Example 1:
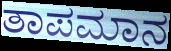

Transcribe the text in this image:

ತಾಪಮಾನ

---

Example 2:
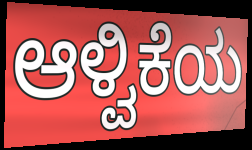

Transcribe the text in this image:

ಆಳ್ವಿಕೆಯ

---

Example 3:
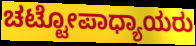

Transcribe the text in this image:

ಚಟ್ಟೋಪಾಧ್ಯಾಯರು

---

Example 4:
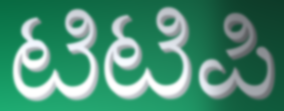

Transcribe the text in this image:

ಟಿಟಿಪಿ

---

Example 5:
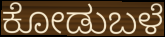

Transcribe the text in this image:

ಕೋಡುಬಳೆ